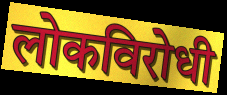
लोकविरोधी